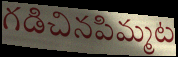
గడిచినపిమ్మట